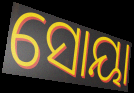
ସୋୟା